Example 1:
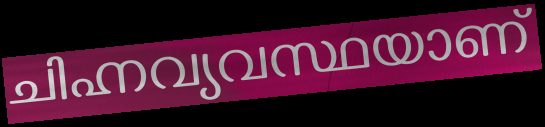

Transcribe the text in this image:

ചിഹ്നവ്യവസ്ഥയാണ്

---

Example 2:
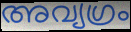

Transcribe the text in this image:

അവ്യഗ്രം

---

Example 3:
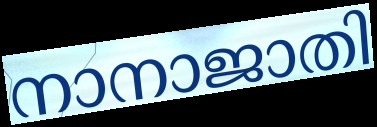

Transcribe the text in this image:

നാനാജാതി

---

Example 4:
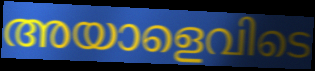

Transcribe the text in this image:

അയാളെവിടെ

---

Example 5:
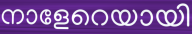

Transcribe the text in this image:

നാളേറെയായി